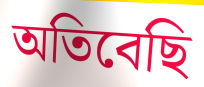
অতিবেছি